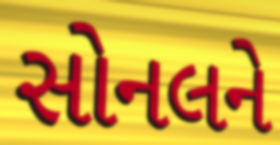
સોનલને